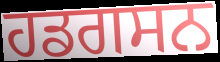
ਹਡਗਸਨ